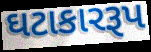
ઘટાકારરૂપ